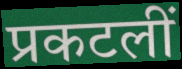
प्रकटलीं